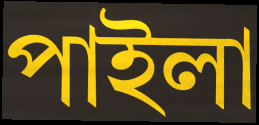
পাইলা